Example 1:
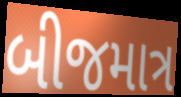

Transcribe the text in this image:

બીજમાત્ર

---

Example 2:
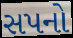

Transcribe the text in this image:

સપનો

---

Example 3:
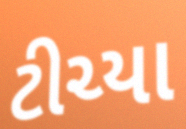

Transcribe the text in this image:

ટીચ્યા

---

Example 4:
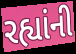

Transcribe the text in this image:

રહ્યાંની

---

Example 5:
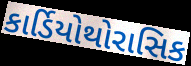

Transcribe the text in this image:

કાર્ડિયોથોરાસિક